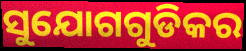
ସୁଯୋଗଗୁଡିକର